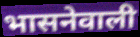
भासनेवाली